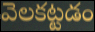
వెలకట్టడం